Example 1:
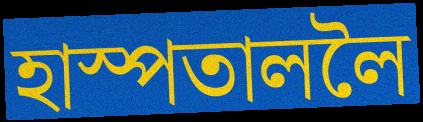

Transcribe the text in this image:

হাস্পতাললৈ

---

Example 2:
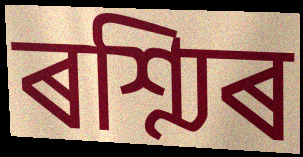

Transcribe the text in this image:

ৰশ্মিৰ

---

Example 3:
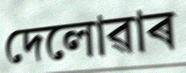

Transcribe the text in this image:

দেলোৱাৰ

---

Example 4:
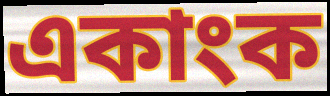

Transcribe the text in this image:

একাংক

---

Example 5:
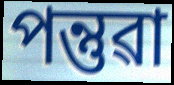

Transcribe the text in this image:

পন্তুৱা